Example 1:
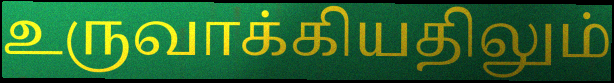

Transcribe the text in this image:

உருவாக்கியதிலும்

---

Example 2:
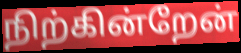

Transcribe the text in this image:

நிற்கின்றேன்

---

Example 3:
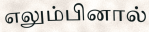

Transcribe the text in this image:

எலும்பினால்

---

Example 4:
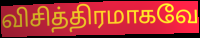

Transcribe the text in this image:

விசித்திரமாகவே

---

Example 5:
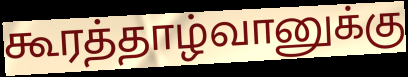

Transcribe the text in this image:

கூரத்தாழ்வானுக்கு